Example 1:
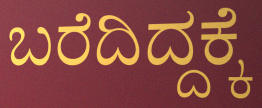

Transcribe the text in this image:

ಬರೆದಿದ್ದಕ್ಕೆ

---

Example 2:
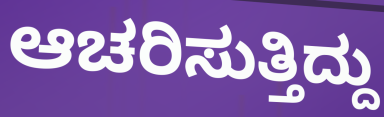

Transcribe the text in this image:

ಆಚರಿಸುತ್ತಿದ್ದು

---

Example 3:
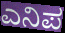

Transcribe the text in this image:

ಎನಿಪ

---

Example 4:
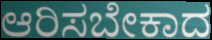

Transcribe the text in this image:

ಆರಿಸಬೇಕಾದ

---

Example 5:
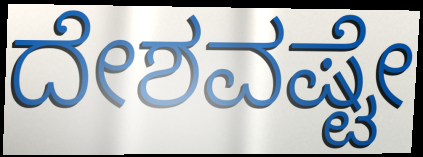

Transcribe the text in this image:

ದೇಶವಷ್ಟೇ